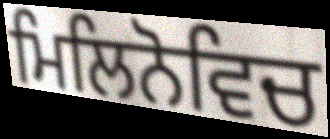
ਮਿਲਿਨੋਵਿਚ